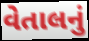
વેતાલનું